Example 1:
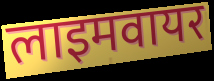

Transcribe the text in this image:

लाइमवायर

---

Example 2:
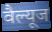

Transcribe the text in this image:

वैल्यूज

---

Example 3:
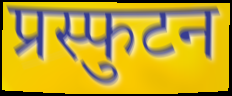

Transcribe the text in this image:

प्रस्फुटन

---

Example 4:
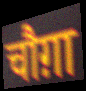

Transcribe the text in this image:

चौग़ा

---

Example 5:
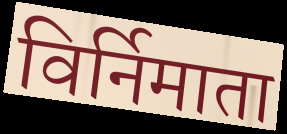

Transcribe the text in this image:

विर्निमाता